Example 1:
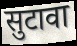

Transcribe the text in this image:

सुटावा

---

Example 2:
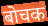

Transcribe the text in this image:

बोचक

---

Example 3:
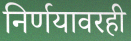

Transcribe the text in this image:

निर्णयावरही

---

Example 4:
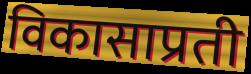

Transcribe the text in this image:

विकासाप्रती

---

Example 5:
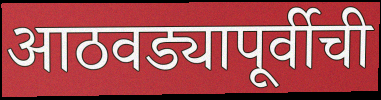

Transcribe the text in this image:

आठवड्यापूर्वीची